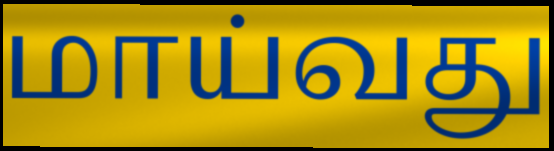
மாய்வது